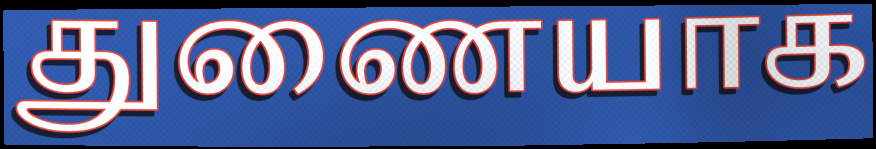
துணையாக